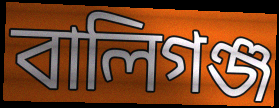
বালিগঞ্জ